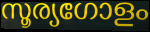
സൂര്യഗോളം